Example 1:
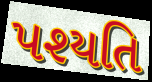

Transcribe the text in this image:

પશ્યતિ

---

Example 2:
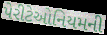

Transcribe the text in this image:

પેરીટેઓનિયમની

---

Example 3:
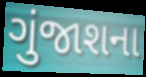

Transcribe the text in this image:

ગુંજાશના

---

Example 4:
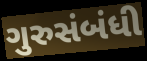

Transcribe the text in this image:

ગુરુસંબંધી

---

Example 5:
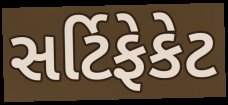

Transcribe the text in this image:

સર્ટિફેકેટ